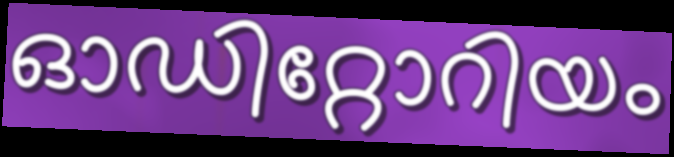
ഓഡിറ്റോറിയം